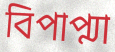
বিপাপ্মা